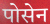
पोसेन